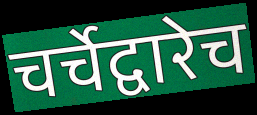
चर्चेद्वारेच